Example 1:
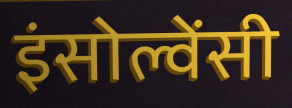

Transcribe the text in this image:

इंसोल्वेंसी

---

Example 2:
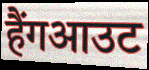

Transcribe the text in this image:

हैंगआउट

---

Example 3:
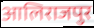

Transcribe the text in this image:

आलिराजपुर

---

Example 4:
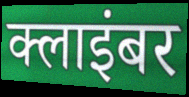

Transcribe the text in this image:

क्लाइंबर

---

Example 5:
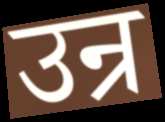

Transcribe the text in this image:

उन्र